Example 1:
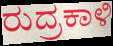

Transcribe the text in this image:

ರುದ್ರಕಾಳಿ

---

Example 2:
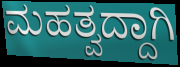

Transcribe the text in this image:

ಮಹತ್ವದ್ದಾಗಿ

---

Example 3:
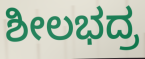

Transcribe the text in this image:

ಶೀಲಭದ್ರ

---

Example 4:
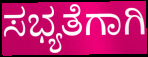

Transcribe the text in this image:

ಸಭ್ಯತೆಗಾಗಿ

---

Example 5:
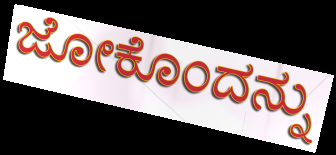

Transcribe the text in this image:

ಜೋಕೊಂದನ್ನು